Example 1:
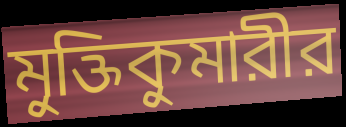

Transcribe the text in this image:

মুক্তিকুমারীর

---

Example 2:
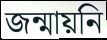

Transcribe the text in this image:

জন্মায়নি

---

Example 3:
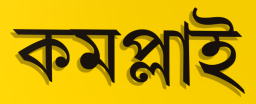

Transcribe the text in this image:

কমপ্লাই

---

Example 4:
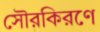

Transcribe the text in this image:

সৌরকিরণে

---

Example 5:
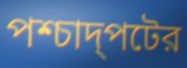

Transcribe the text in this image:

পশ্চাদ্পটের